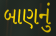
બાણનું